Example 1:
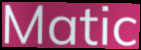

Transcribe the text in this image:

Matic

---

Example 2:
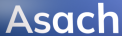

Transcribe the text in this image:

Asach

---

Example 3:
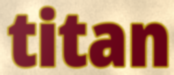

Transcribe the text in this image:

titan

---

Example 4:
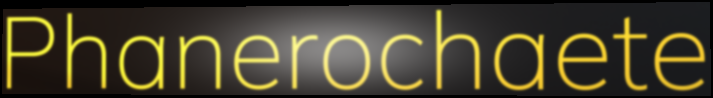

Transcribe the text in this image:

Phanerochaete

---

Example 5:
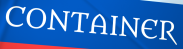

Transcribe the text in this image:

CONTAINER